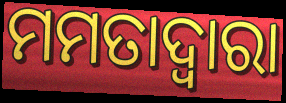
ମମତାଦ୍ୱାରା